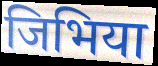
जिभिया